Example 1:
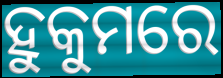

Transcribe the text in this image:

ହୁକୁମରେ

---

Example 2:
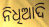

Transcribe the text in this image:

ନିଧିଆଦି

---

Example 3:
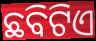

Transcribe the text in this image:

ଛବିଟିଏ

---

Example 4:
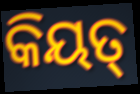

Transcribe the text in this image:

କିୟତ୍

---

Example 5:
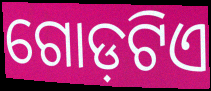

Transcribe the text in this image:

ଗୋଡ଼ଟିଏ